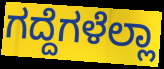
ಗದ್ದೆಗಳೆಲ್ಲಾ